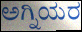
ಅಗ್ನಿಯರ